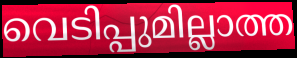
വെടിപ്പുമില്ലാത്ത